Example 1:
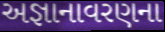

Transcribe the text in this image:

અજ્ઞાનાવરણના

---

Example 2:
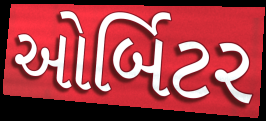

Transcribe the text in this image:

ઓર્બિટર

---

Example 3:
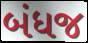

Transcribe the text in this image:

બંધજ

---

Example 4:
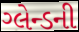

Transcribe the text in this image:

ગ્લેન્ડની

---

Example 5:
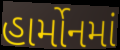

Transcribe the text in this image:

હાર્મોનમાં